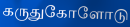
கருதுகோளோடு